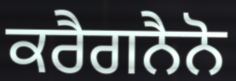
ਕਰੈਗਨੈਨੋ